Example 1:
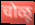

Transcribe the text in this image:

चोळू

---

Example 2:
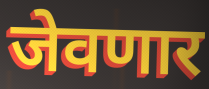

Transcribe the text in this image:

जेवणार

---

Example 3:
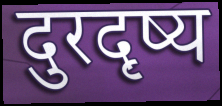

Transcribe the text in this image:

दुरदृष्य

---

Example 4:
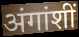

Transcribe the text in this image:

अंगांशीं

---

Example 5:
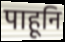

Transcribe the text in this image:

पाहूनि